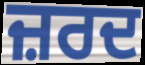
ਜ਼ਰਦ